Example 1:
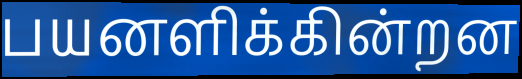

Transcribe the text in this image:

பயனளிக்கின்றன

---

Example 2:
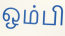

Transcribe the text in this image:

ஒம்பி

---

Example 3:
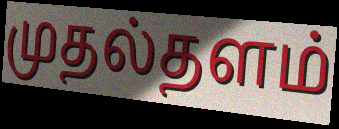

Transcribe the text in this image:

முதல்தளம்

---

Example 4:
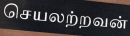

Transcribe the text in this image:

செயலற்றவன்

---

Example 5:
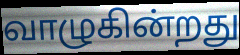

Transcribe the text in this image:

வாழுகின்றது